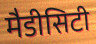
मैडीसिटी